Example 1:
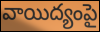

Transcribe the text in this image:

వాయిద్యంపై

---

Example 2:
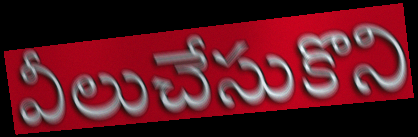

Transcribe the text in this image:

వీలుచేసుకొని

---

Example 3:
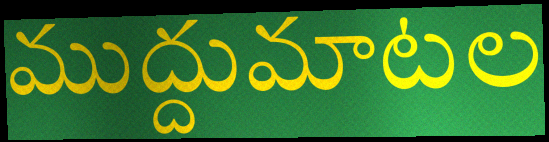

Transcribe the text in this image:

ముద్దుమాటల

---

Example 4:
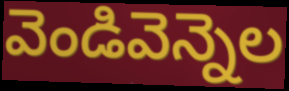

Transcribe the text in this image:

వెండివెన్నెల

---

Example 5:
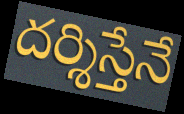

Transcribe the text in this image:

దర్శిస్తేనే